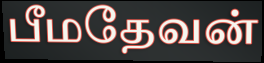
பீமதேவன்